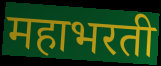
महाभरती